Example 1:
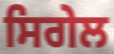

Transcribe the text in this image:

ਸਿਗੇਲ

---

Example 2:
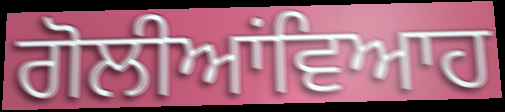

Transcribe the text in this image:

ਗੋਲੀਆਂਵਿਆਹ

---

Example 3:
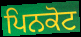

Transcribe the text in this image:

ਪਿਨਕੋਟ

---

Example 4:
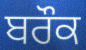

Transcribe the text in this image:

ਬਰੌਕ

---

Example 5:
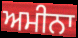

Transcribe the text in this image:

ਅਮੀਨਾ